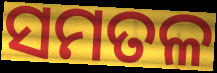
ସମତଳ